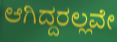
ಆಗಿದ್ದರಲ್ಲವೇ